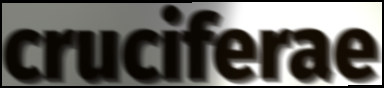
cruciferae